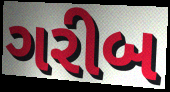
ગરીબ